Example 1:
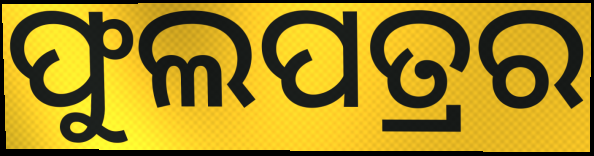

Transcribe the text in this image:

ଫୁଲପତ୍ରର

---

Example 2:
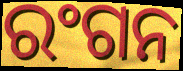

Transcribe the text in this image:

ରଂଗନ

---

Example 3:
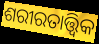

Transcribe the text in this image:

ଶରୀରତାତ୍ତ୍ଵିକ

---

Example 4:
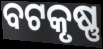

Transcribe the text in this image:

ବଟକୃଷ୍ଣ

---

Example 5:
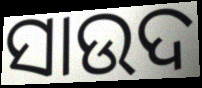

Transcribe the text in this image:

ସାଉଦ